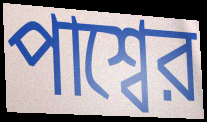
পাশ্বের